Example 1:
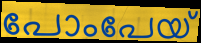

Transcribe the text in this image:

പോംപേയ്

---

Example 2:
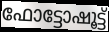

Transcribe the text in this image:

ഫോട്ടോഷൂട്ട്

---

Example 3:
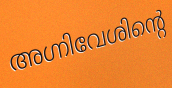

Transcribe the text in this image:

അഗ്നിവേശിന്റെ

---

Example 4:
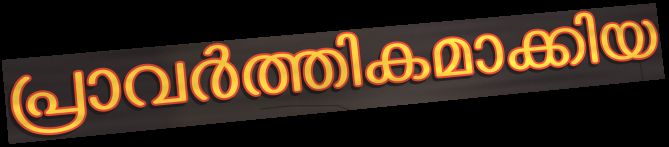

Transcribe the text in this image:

പ്രാവർത്തികമാക്കിയ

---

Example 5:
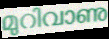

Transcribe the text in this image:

മുറിവാണു